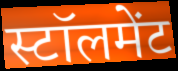
स्टॉलमेंट